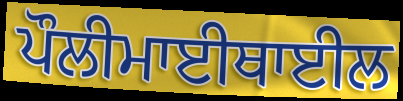
ਪੌਲੀਮਾਈਥਾਈਲ